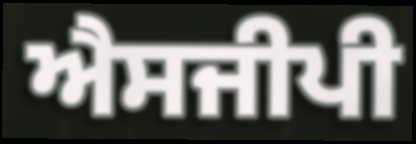
ਐਸਜੀਪੀ